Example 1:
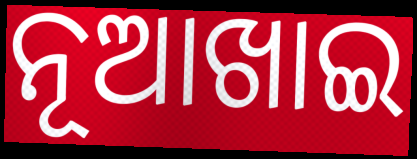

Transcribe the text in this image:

ନୂଆଖାଇ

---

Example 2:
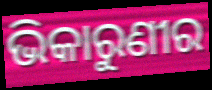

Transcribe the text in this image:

ଭିକାରୁଣୀର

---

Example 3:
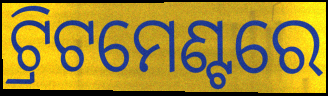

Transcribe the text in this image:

ଟ୍ରିଟମେଣ୍ଟରେ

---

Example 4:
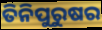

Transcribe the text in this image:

ତିନିପୁରୁଷର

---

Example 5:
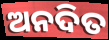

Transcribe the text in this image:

ଅନଦିତ